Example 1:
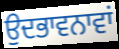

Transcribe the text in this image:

ਉਦਭਾਵਨਾਵਾਂ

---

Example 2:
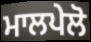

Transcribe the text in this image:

ਮਾਲਪੇਲੋ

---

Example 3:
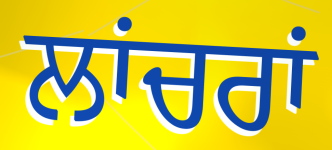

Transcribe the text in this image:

ਲਾਂਚਰਾਂ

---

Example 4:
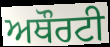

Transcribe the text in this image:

ਅਥੌਰਟੀ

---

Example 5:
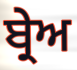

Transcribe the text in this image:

ਬ੍ਰੇਅ